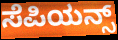
ಸೆಪಿಯನ್ಸ್